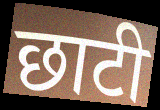
छाटी